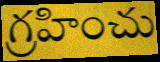
గ్రహించు